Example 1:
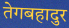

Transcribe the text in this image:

तेगबहादुर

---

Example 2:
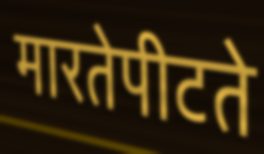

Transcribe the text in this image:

मारतेपीटते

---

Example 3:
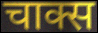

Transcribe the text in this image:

चाक्स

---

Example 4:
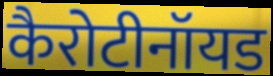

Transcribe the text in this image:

कैरोटीनॉयड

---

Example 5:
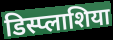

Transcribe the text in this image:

डिस्प्लाशिया